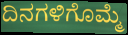
ದಿನಗಳಿಗೊಮ್ಮೆ